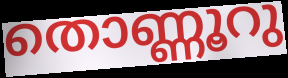
തൊണ്ണൂറു